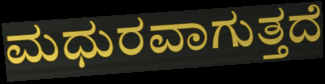
ಮಧುರವಾಗುತ್ತದೆ